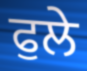
ਫੁਲੇ